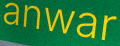
anwar